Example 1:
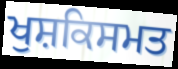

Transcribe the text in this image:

ਖੁਸ਼ਕਿਸਮਤ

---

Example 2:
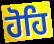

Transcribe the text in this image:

ਹੋਹਿ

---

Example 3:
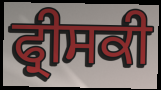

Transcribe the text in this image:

ਫ੍ਰੀਸਕੀ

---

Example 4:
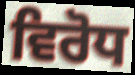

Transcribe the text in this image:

ਵਿਰੋਧ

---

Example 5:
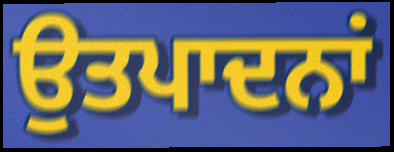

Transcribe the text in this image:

ਉਤਪਾਦਨਾਂ